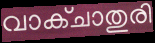
വാക്ചാതുരി